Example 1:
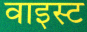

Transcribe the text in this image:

वाइस्ट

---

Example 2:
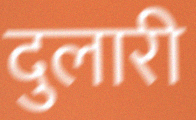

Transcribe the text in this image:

दुलारी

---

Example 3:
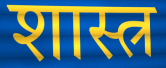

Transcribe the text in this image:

शास्त्र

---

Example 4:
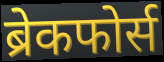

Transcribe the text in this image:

ब्रेकफोर्स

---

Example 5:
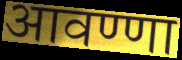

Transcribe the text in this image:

आवण्णा